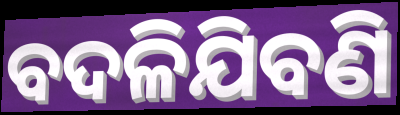
ବଦଳିଯିବଣି